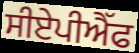
ਸੀਏਪੀਐੱਫ